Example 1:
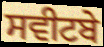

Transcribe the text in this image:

ਸਵੀਟਬੇ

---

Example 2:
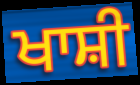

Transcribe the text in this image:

ਖਾਸ਼ੀ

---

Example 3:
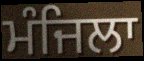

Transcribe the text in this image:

ਮੰਜਿਲਾ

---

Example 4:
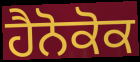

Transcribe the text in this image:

ਹੈਨੋਕੋਕ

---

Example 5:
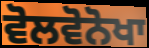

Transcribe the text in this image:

ਵੋਲਵੋਨੋਖਾ